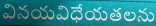
వినయవిధేయతలను